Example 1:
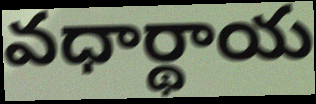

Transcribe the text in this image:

వధార్థాయ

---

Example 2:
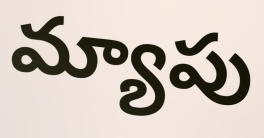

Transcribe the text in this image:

మ్యాపు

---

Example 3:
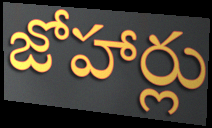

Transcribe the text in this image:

జోహార్లు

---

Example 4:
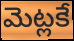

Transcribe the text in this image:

మెట్లకే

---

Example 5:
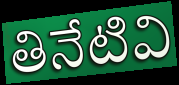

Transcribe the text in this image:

తినేటివి